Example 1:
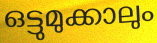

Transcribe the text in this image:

ഒട്ടുമുക്കാലും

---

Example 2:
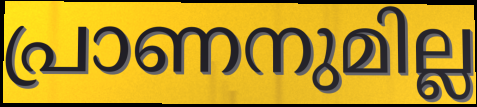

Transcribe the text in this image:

പ്രാണനുമില്ല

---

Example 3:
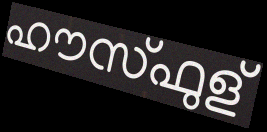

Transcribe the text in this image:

ഹൗസ്ഫുള്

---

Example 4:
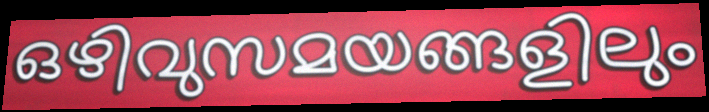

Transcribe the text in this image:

ഒഴിവുസമയങ്ങളിലും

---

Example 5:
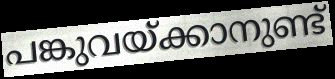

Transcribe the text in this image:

പങ്കുവയ്ക്കാനുണ്ട്